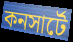
কনসার্টে